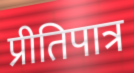
प्रीतिपात्र